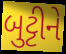
બુટ્ટીને